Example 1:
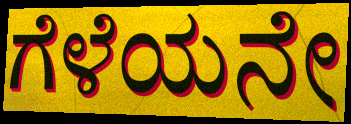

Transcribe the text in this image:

ಗೆಳೆಯನೇ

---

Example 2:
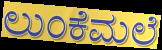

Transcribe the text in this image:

ಲುಂಕೆಮಲೆ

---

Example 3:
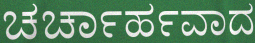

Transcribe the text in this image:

ಚರ್ಚಾರ್ಹವಾದ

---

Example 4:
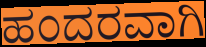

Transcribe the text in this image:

ಹಂದರವಾಗಿ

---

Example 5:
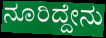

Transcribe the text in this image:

ನೂರಿದ್ದೇನು